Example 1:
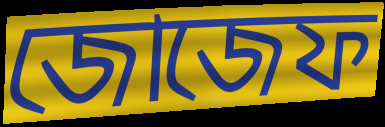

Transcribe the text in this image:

জোজেফ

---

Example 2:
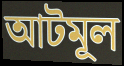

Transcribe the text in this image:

আটমূল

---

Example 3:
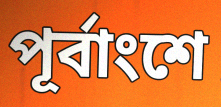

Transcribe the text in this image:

পূর্বাংশে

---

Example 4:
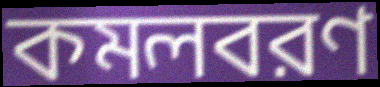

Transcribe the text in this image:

কমলবরণ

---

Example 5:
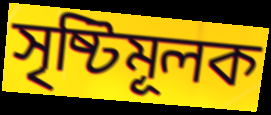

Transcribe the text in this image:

সৃষ্টিমূলক